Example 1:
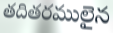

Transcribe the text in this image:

తదితరములైన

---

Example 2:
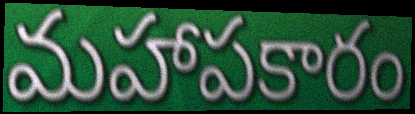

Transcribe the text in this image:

మహాపకారం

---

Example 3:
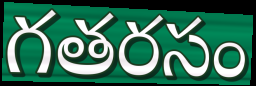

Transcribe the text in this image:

గతరసం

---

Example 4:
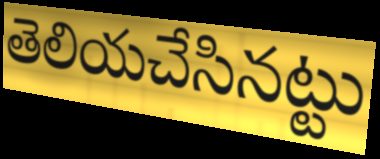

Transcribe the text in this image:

తెలియచేసినట్టు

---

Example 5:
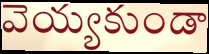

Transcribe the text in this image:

వెయ్యకుండా